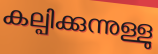
കല്പിക്കുന്നുള്ളു